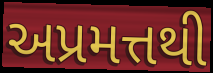
અપ્રમત્તથી